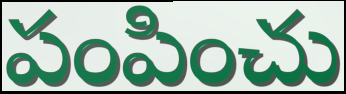
పంపించు